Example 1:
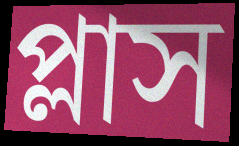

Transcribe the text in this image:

প্লাস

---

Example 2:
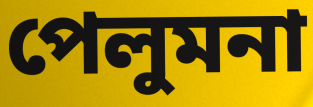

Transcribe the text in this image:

পেলুমনা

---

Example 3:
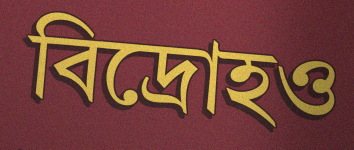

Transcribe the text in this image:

বিদ্রোহও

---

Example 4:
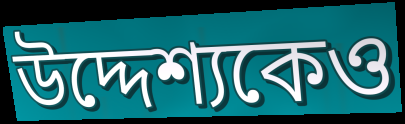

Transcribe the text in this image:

উদ্দেশ্যকেও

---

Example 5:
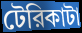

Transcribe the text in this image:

টেরিকাটা